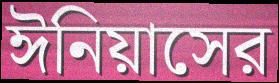
ঈনিয়াসের